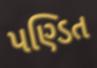
પણ્ડિત